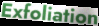
Exfoliation